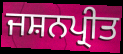
ਜਸ਼ਨਪ੍ਰੀਤ